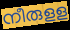
നീരുളള